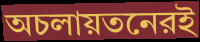
অচলায়তনেরই